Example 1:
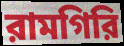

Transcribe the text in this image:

রামগিরি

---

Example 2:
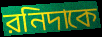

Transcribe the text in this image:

রনিদাকে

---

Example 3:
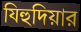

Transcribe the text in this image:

যিহুদিয়ার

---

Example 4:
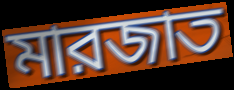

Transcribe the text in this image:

মারজাত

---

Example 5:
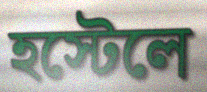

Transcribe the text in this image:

হস্টেলে